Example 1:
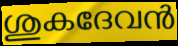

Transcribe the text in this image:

ശുകദേവൻ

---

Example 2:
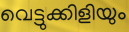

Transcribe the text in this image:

വെട്ടുക്കിളിയും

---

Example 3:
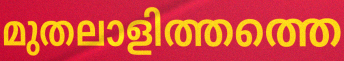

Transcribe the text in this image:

മുതലാളിത്തത്തെ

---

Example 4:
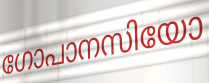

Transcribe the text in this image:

ഗോപാനസിയോ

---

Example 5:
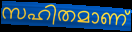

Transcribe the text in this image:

സഹിതമാണ്